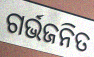
ଗର୍ଭଜନିତ